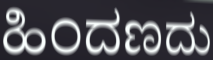
ಹಿಂದಣದು